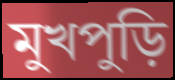
মুখপুড়ি